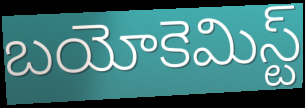
బయోకెమిస్ట్